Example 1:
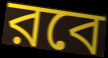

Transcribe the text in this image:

রবে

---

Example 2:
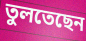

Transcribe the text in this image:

তুলতেছেন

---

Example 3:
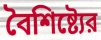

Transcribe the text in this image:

বৈশিষ্ট্যের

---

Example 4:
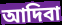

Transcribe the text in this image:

আদিবা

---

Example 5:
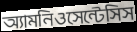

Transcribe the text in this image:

অ্যামনিওসেন্টেসিস